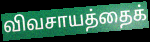
விவசாயத்தைக்